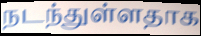
நடந்துள்ளதாக